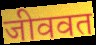
जीववत